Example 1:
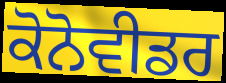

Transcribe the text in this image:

ਕੋਨੋਵੀਡਰ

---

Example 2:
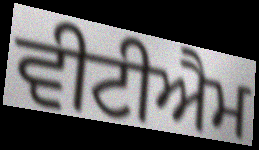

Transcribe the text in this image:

ਵੀਟੀਐਮ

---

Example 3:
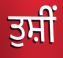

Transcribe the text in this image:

ਤੁਸ਼ੀਂ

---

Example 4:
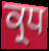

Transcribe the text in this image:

ਕ੍ਰਧ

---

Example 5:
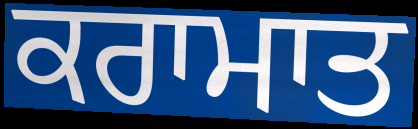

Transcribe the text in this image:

ਕਰਾਮਾਤ